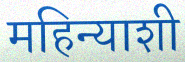
महिन्याशी